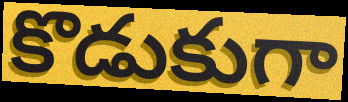
కొడుకుగా